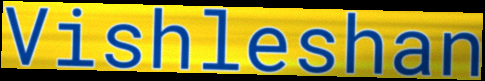
Vishleshan